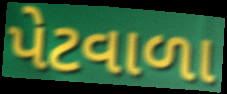
પેટવાળા